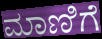
ಮಾಣಿಗೆ